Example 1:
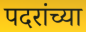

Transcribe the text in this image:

पदरांच्या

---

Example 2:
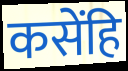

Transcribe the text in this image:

कसेंहि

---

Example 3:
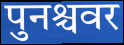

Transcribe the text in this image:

पुनश्चवर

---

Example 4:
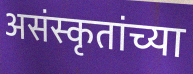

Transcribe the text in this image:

असंस्कृतांच्या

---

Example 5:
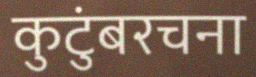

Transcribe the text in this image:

कुटुंबरचना